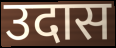
उदास